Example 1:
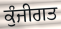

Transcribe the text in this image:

ਕੁੰਜੀਗਤ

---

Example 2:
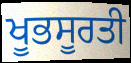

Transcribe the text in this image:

ਖੂਭਸੂਰਤੀ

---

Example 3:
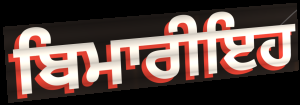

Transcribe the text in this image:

ਬਿਮਾਰੀਇਹ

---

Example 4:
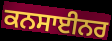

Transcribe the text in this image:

ਕਨਸਾਈਨਰ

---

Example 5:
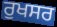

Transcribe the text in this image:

ਰੁਖਸਰ